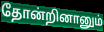
தோன்றினானும்